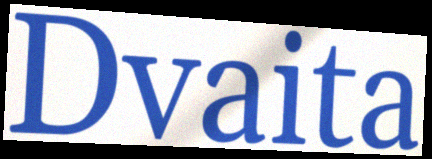
Dvaita